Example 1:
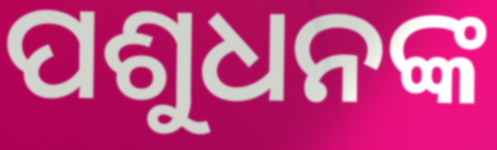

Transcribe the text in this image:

ପଶୁଧନଙ୍କ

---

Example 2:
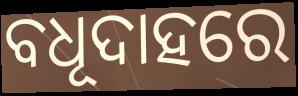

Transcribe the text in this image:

ବଧୂଦାହରେ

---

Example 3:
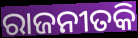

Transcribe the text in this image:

ରାଜନୀତକି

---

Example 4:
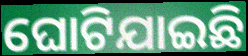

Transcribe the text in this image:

ଘୋଟିଯାଇଛି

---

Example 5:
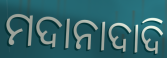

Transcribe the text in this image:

ମଦାନାଦାଦି